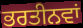
ਭਰਤੀਨਵਾਂ